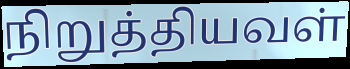
நிறுத்தியவள்